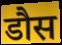
डौस